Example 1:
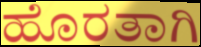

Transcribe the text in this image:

ಹೊರತಾಗಿ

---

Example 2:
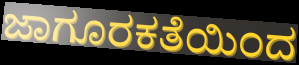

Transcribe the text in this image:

ಜಾಗೂರಕತೆಯಿಂದ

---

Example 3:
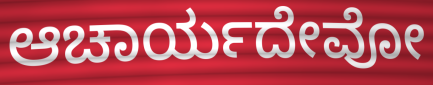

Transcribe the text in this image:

ಆಚಾರ್ಯದೇವೋ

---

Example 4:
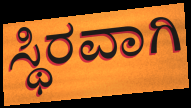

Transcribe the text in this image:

ಸ್ಥಿರವಾಗಿ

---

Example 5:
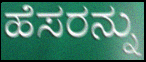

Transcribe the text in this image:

ಹೆಸರನ್ನು